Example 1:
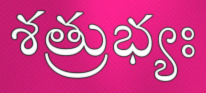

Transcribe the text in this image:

శత్రుభ్యః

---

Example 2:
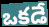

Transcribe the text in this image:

ఒకడే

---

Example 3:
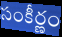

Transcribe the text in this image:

సంకీర్ణం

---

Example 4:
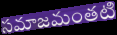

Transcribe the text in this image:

సమాజమంతటి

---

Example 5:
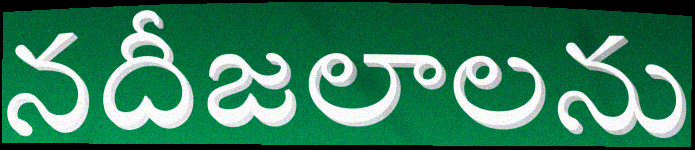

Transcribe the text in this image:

నదీజలాలను